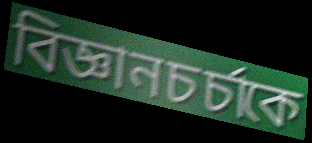
বিজ্ঞানচর্চাকে